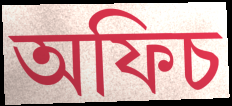
অফিচ